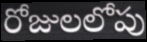
రోజులలోపు